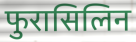
फुरासिलिन